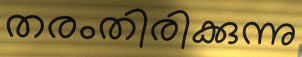
തരംതിരിക്കുന്നു